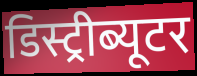
डिस्ट्रीब्यूटर